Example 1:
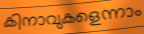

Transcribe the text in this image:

കിനാവുകളെന്നാം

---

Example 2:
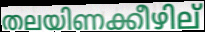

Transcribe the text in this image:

തലയിണക്കീഴില്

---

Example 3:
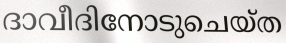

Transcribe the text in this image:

ദാവീദിനോടുചെയ്ത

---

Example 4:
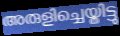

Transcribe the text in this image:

അരുളിച്ചെയ്തിട്ടു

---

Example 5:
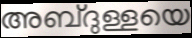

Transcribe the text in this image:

അബ്ദുള്ളയെ